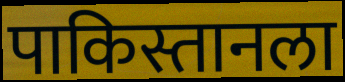
पाकिस्तानला